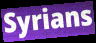
Syrians